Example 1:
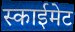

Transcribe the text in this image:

स्काईमेट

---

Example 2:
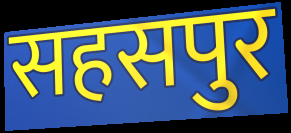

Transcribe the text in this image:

सहसपुर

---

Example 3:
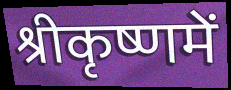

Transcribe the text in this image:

श्रीकृष्णमें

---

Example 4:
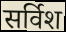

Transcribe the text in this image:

सर्विश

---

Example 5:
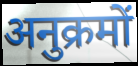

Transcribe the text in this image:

अनुक्रमों